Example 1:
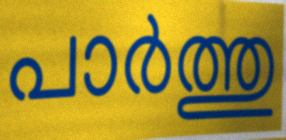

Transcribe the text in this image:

പാർത്തു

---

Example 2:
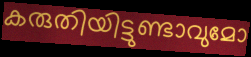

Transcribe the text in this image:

കരുതിയിട്ടുണ്ടാവുമോ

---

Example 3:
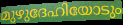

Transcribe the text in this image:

മുഴുദേഹിയോടും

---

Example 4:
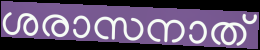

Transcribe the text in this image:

ശരാസനാത്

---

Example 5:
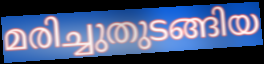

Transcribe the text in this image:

മരിച്ചുതുടങ്ങിയ